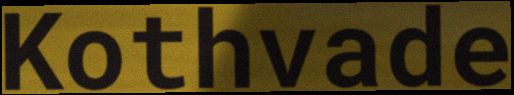
Kothvade